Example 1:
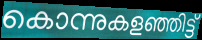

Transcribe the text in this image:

കൊന്നുകളഞ്ഞിട്ട്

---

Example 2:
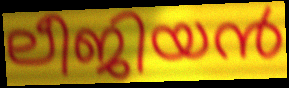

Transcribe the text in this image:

ലീജിയൻ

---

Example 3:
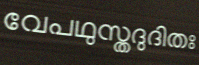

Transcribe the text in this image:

വേപഥുസ്തദുദിതഃ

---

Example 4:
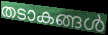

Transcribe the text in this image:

തടാകങ്ങൾ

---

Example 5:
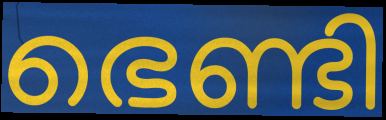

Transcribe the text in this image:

ഭെണ്ടി